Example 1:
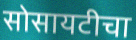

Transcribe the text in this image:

सोसायटीचा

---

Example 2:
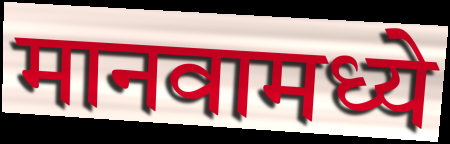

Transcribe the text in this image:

मानवामध्ये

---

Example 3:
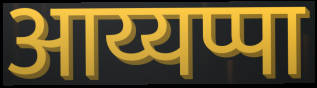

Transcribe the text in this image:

आय्यप्पा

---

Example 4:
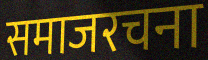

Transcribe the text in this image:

समाजरचना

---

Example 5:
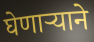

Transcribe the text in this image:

घेणाऱ्याने